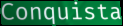
Conquista